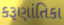
કરૂણાંતિકા